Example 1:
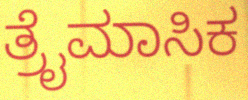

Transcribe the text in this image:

ತ್ರೈಮಾಸಿಕ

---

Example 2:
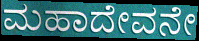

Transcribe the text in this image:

ಮಹಾದೇವನೇ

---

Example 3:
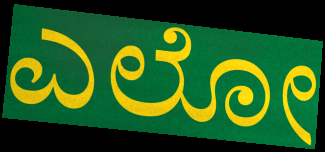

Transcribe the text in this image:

ಎಲೋ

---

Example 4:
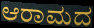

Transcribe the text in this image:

ಆರಾಮದ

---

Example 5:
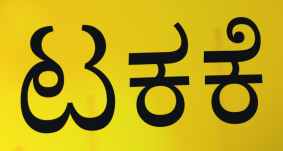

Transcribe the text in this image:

ಟಕಕೆ